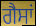
ਗੈਸਾਂ